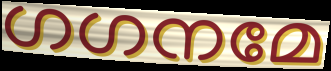
ഗഗനമേ